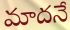
మాదనే